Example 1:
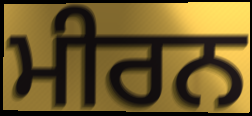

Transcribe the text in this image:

ਮੀਰਨ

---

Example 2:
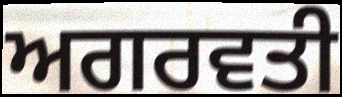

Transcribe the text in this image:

ਅਗਰਵਤੀ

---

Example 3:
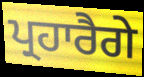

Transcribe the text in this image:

ਪ੍ਰਹਾਰੈਗੇ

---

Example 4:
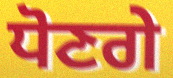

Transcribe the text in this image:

ਧੋਣਗੇ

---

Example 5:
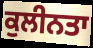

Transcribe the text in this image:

ਕੁਲੀਨਤਾ